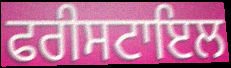
ਫਰੀਸਟਾਇਲ